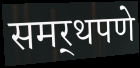
समर्थपणे